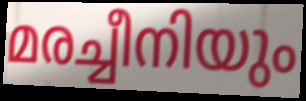
മരച്ചീനിയും